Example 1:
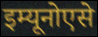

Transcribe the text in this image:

इम्यूनोएसे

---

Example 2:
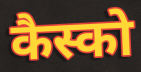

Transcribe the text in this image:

कैस्को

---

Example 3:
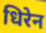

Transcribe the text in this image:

धिरेन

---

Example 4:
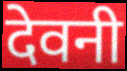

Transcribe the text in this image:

देवनी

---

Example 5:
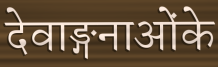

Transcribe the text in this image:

देवाङ्गनाओंके